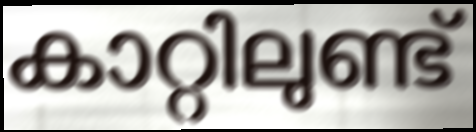
കാറ്റിലുണ്ട്